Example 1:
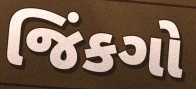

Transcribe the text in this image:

જિંકગો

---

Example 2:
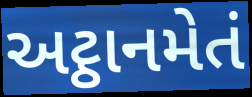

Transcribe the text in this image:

અટ્ઠાનમેતં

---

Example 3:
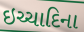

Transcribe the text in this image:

ઇચ્ચાદિના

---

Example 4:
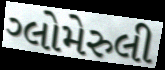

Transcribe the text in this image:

ગ્લોમેરુલી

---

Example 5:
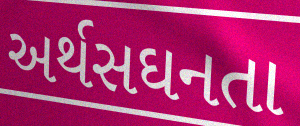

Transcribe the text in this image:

અર્થસઘનતા